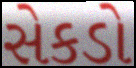
સેકડો